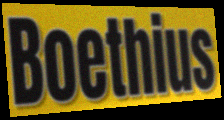
Boethius